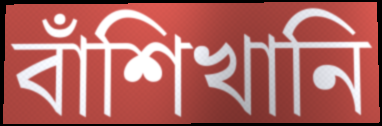
বাঁশিখানি